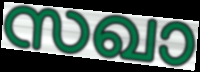
സഖാ